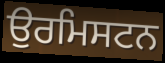
ਉਰਮਿਸਟਨ